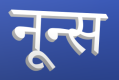
नून्स